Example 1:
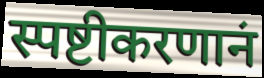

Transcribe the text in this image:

स्पष्टीकरणानं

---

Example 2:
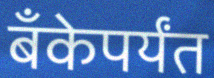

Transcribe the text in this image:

बॅंकेपर्यंत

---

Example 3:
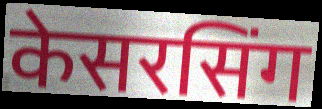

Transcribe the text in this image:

केसरसिंग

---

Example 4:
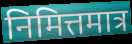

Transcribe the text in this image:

निमित्तमात्र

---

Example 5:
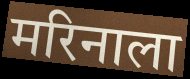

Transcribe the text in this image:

मरिनाला